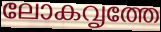
ലോകവൃത്തേ